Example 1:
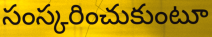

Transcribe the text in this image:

సంస్కరించుకుంటూ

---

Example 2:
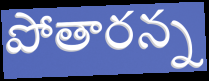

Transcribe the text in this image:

పోతారన్న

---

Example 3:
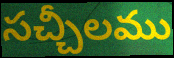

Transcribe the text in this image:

సచ్చీలము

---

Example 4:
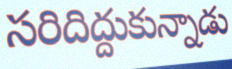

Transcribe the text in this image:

సరిదిద్దుకున్నాడు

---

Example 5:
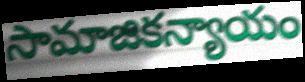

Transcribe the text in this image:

సామాజికన్యాయం